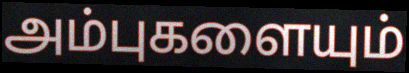
அம்புகளையும்